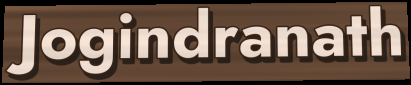
Jogindranath